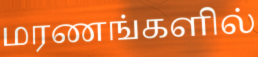
மரணங்களில்